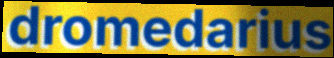
dromedarius